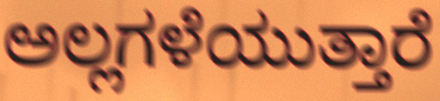
ಅಲ್ಲಗಳೆಯುತ್ತಾರೆ